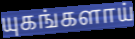
யுகங்களாய்